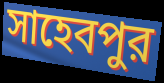
সাহেবপুর